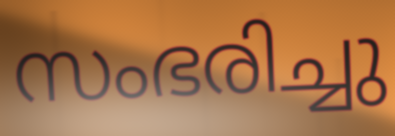
സംഭരിച്ചു